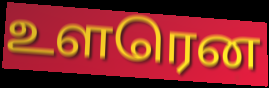
உளரென